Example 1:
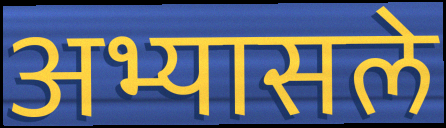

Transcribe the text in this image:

अभ्यासले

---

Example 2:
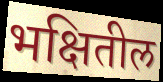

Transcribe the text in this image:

भक्षितील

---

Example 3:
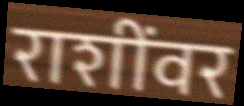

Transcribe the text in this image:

राशींवर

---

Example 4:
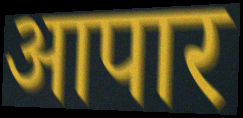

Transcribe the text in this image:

आपार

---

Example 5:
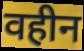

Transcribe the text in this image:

वहीन